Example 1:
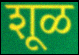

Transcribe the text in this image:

शूळ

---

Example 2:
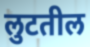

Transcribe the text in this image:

लुटतील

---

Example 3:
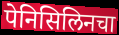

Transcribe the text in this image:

पेनिसिलिनचा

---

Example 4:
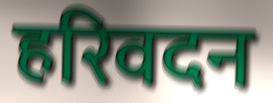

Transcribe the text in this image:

हरिवदन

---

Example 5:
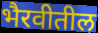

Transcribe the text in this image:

भैरवीतील